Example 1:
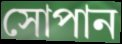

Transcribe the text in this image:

সোপান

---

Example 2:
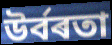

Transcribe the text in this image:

উৰ্বৰতা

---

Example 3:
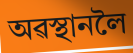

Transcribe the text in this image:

অৱস্থানলৈ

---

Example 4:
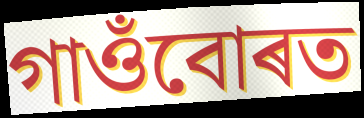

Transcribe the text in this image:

গাওঁবোৰত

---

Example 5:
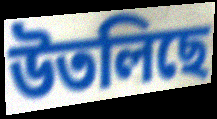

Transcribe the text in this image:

উতলিছে